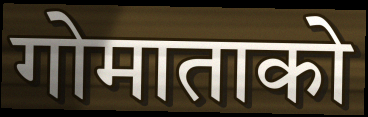
गोमाताको